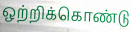
ஒற்றிக்கொண்டு